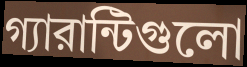
গ্যারান্টিগুলো